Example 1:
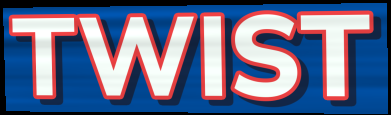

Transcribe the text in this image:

TWIST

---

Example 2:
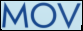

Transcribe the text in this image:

MOV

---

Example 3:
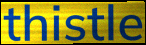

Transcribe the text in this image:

thistle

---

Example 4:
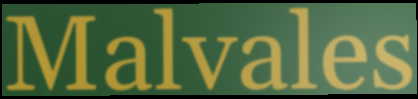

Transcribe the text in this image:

Malvales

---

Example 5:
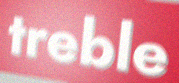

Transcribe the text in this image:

treble